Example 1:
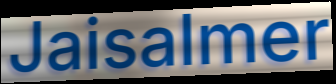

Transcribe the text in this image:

Jaisalmer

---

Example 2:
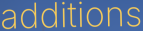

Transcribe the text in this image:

additions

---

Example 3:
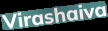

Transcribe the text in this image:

Virashaiva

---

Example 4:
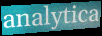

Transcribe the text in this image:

analytica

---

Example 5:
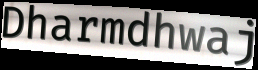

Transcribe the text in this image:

Dharmdhwaj